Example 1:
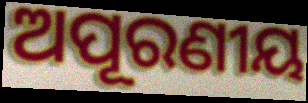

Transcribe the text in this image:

ଅପୂରଣୀୟ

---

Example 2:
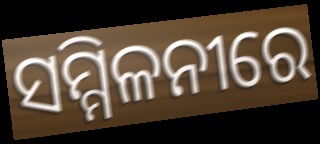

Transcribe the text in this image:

ସମ୍ମିଳନୀରେ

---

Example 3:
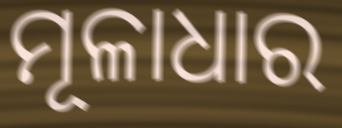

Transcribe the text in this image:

ମୂଳାଧାର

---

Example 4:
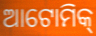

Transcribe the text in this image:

ଆଟୋମିକ୍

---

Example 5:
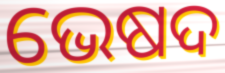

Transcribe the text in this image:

ଭେଷଦ